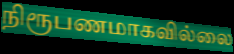
நிரூபணமாகவில்லை